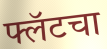
फ्लॅटचा